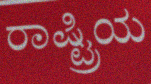
ರಾಷ್ಟ್ರಿಯ